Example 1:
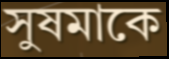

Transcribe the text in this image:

সুষমাকে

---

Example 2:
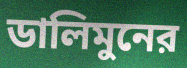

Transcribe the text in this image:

ডালিমুনের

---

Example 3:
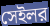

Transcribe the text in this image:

সেইলর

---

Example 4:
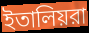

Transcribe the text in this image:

ইতালিয়রা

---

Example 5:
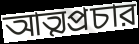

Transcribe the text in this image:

আত্মপ্রচার